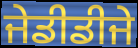
ਜੇਡੀਡੀਜੇ